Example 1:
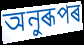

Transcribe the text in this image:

অনুৰূপৰ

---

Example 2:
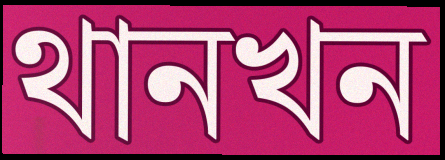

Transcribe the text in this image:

থানখন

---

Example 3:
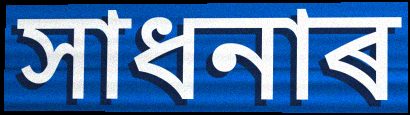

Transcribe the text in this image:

সাধনাৰ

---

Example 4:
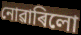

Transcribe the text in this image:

নোৱাৰিলো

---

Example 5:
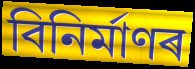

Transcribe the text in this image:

বিনিৰ্মাণৰ